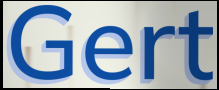
Gert